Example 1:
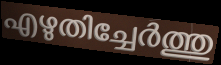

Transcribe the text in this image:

എഴുതിച്ചേർത്തു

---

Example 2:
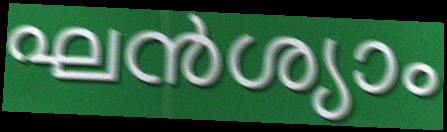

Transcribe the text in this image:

ഘൻശ്യാം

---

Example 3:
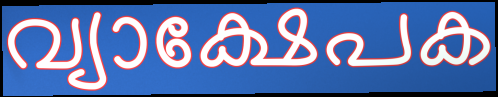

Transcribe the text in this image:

വ്യാക്ഷേപക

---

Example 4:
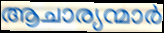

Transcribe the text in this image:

ആചാര്യന്മാർ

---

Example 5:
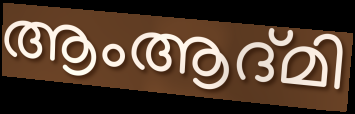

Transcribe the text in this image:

ആംആദ്മി